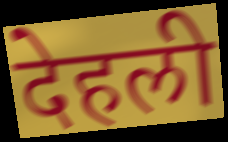
देहली